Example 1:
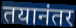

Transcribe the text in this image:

तयानंतर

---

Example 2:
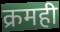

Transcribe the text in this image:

क्रमही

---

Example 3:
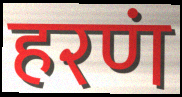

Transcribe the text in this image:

हरणं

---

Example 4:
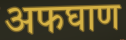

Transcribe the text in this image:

अफघाण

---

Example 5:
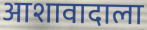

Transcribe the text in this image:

आशावादाला